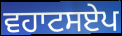
ਵਹਾਟਸਏਪ